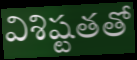
విశిష్టతతో